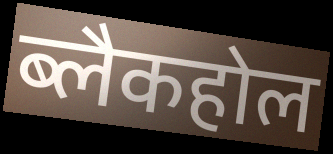
ब्लैकहोल